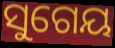
ସୁଗେୟ